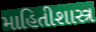
માહિતીશાસ્ત્ર